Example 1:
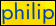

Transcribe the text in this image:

philip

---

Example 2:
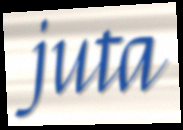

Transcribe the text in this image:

juta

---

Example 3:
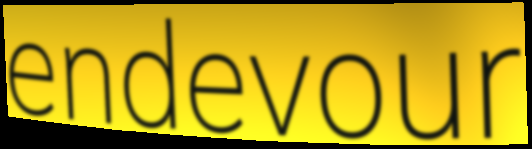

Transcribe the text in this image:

endevour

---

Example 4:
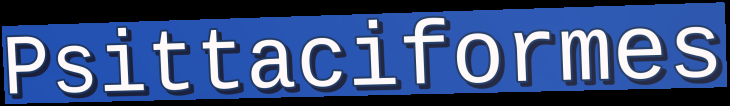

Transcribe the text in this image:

Psittaciformes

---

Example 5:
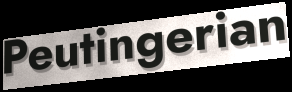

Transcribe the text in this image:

Peutingerian